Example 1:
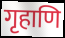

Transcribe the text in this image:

गृहाणि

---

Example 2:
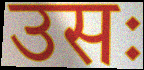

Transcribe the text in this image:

उसः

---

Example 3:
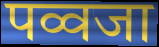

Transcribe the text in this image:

पव्वजा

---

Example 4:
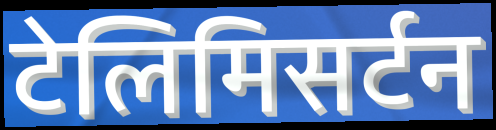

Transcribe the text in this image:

टेलिमिसर्टन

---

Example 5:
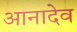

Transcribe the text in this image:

आनादेव